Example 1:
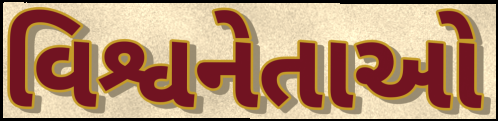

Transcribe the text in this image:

વિશ્વનેતાઓ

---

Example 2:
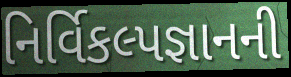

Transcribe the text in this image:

નિર્વિકલ્પજ્ઞાનની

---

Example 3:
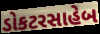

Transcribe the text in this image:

ડોકટરસાહેબ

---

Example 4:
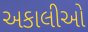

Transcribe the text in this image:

અકાલીઓ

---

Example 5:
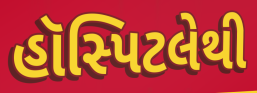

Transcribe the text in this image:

હૉસ્પિટલેથી